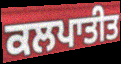
ਕਲਪਾਤੀਤ